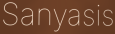
Sanyasis